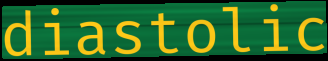
diastolic